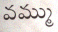
వమ్ము